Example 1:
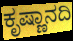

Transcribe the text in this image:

ಕೃಷ್ಣಾನದಿ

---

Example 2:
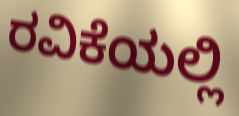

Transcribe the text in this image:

ರವಿಕೆಯಲ್ಲಿ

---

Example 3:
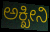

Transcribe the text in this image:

ಅಕ್ಖೀನಿ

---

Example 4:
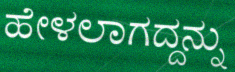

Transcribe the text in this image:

ಹೇಳಲಾಗದ್ದನ್ನು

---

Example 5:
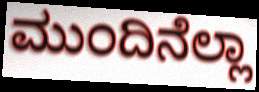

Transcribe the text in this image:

ಮುಂದಿನೆಲ್ಲಾ